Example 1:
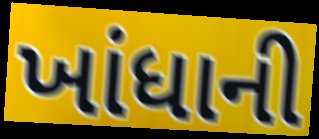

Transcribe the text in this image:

ખાંધાની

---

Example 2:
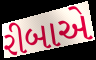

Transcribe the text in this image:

રીબાએ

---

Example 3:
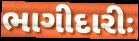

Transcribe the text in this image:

ભાગીદારીઃ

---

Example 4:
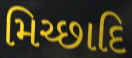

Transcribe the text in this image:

મિચ્છાદિ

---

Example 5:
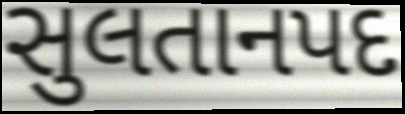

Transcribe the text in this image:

સુલતાનપદ